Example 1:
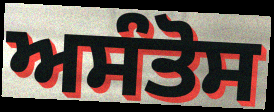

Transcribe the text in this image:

ਅਸੰਤੋਸ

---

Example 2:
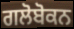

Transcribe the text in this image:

ਗਲੋਬੋਕਨ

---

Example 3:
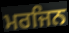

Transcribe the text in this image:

ਮਰਜਿਨ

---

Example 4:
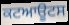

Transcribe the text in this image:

ਕਟਆਊਟਸ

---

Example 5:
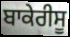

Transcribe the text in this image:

ਬਾਕੇਰੀਸੂ